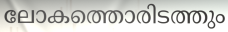
ലോകത്തൊരിടത്തും